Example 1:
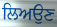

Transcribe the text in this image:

ਲਿਅਉਣ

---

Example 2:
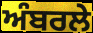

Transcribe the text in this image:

ਅੰਬਰਲੇ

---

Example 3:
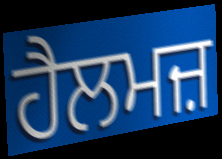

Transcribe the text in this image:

ਹੈਲਮਜ਼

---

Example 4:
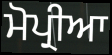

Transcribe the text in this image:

ਮੋਪ੍ਰੀਆ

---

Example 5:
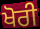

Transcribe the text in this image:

ਖੋਰੀ